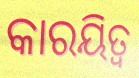
କାରୟିତ୍ୱ